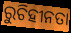
ରୁଚିହୀନତା